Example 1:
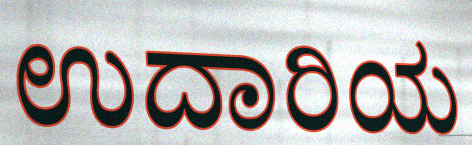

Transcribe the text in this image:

ಉದಾರಿಯ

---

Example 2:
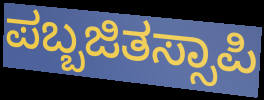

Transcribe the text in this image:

ಪಬ್ಬಜಿತಸ್ಸಾಪಿ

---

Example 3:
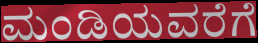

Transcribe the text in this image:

ಮಂಡಿಯವರೆಗೆ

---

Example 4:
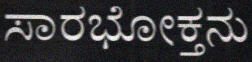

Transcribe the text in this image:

ಸಾರಭೋಕ್ತನು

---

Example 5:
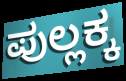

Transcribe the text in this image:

ಪುಲ್ಲಕ್ಕ